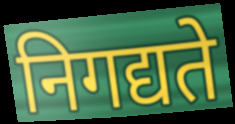
निगद्यते